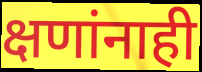
क्षणांनाही